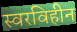
स्वरविहीन